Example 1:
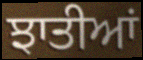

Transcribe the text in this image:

ਝਾਤੀਆਂ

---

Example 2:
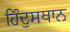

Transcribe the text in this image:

ਹਿੰਦੁਸਥਾਨ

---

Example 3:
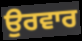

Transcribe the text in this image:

ਉਰਵਾਰ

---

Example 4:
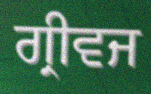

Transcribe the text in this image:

ਗ੍ਰੀਵਜ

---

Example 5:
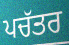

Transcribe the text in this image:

ਪਚੱਤਰ